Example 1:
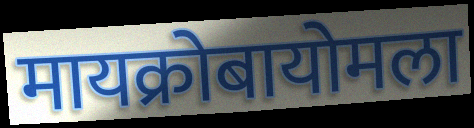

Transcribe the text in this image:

मायक्रोबायोमला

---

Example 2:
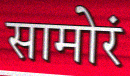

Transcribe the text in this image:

सामोरं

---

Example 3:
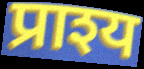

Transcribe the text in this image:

प्राश्य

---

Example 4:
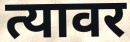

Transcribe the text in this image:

त्यावर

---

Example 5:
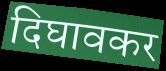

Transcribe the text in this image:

दिघावकर